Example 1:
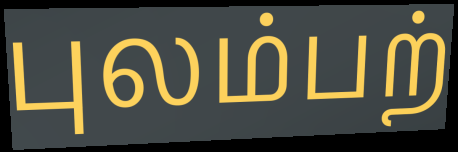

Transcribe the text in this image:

புலம்பற்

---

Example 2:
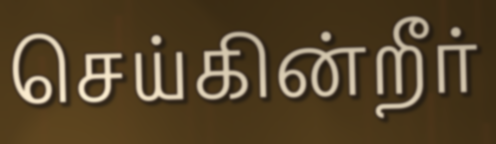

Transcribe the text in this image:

செய்கின்றீர்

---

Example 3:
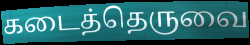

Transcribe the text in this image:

கடைத்தெருவை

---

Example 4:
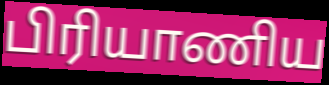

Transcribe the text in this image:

பிரியாணிய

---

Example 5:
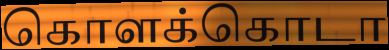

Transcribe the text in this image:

கொளக்கொடா